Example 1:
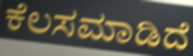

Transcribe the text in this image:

ಕೆಲಸಮಾಡಿದೆ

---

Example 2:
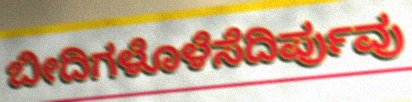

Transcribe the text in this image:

ಬೀದಿಗಳೊಳೆಸೆದಿರ್ಪುವು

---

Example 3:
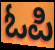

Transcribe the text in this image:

ಓಪಿ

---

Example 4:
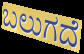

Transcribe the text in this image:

ಬಲುಗದೆ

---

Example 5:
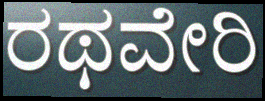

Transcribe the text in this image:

ರಥವೇರಿ